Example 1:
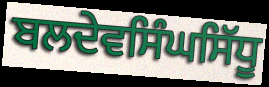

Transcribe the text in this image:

ਬਲਦੇਵਸਿੰਘਸਿੱਧੂ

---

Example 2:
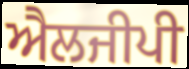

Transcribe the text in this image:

ਐਲਜੀਪੀ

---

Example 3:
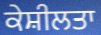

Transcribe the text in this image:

ਕੇਸ਼ੀਲਤਾ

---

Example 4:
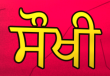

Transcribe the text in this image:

ਸੌਖੀ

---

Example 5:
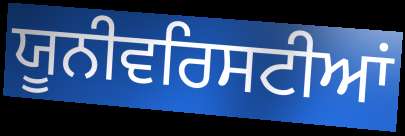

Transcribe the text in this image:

ਯੂਨੀਵਰਿਸਟੀਆਂ